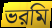
ভরমি